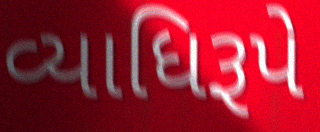
વ્યાધિરૂપે